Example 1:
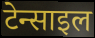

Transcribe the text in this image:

टेन्साइल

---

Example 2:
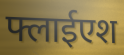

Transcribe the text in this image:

फ्लाईएश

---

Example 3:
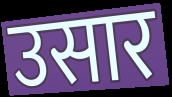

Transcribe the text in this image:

उसार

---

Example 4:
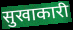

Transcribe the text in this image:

सुखाकारी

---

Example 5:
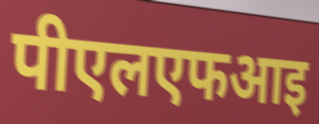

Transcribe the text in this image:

पीएलएफआइ